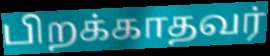
பிறக்காதவர்